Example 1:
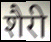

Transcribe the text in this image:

शैरी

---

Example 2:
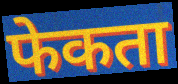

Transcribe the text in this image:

फेकता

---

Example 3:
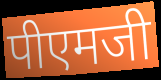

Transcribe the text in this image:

पीएमजी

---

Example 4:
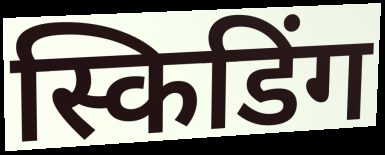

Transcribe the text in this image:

स्किडिंग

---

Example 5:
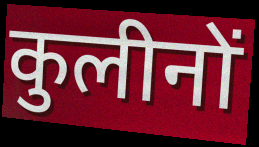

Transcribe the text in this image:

कुलीनों